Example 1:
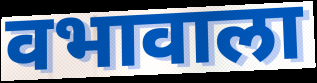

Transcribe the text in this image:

वभावाला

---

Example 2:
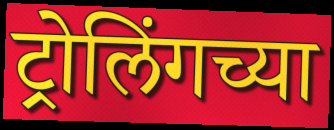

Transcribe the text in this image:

ट्रोलिंगच्या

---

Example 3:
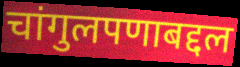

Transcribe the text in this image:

चांगुलपणाबद्दल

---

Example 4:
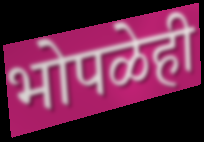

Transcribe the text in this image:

भोपळेही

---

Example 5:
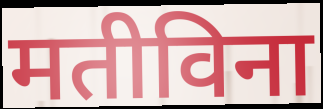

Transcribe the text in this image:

मतीविना